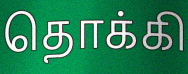
தொக்கி